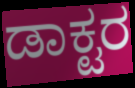
ಡಾಕ್ಟರ